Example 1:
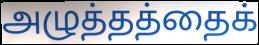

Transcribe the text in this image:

அழுத்தத்தைக்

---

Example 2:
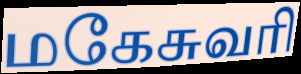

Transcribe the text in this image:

மகேசுவரி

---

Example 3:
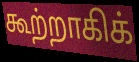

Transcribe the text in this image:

கூற்றாகிக்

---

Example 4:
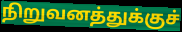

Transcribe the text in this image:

நிறுவனத்துக்குச்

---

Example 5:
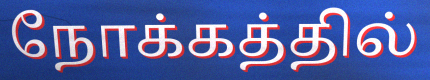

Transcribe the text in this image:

நோக்கத்தில்